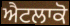
ਐਟਲਾਕੋ